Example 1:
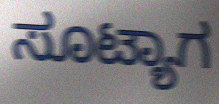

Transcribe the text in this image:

ಸೂಟ್ಯಾಗ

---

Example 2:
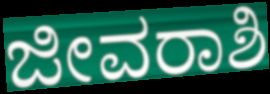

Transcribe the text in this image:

ಜೀವರಾಶಿ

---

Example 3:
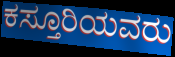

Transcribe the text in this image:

ಕಸ್ತೂರಿಯವರು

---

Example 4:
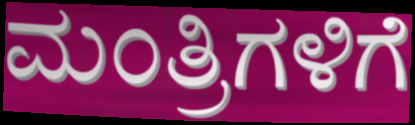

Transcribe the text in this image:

ಮಂತ್ರಿಗಳಿಗೆ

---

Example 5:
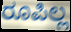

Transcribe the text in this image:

ರೂಪಿಲ್ಲ